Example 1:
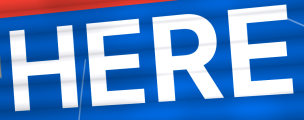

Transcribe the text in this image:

HERE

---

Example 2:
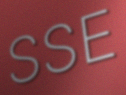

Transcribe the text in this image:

SSE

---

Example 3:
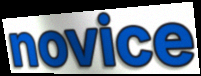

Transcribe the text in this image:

novice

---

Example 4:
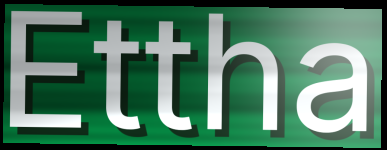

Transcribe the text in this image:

Ettha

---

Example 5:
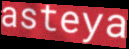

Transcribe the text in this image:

asteya